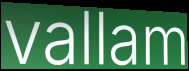
vallam